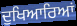
ਦੁਖਿਆਰਿਆਂ